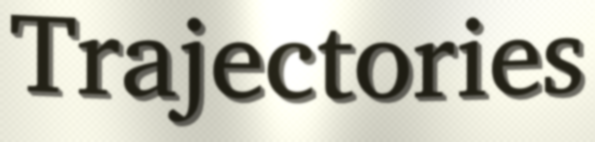
Trajectories